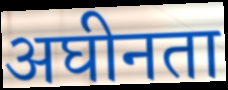
अघीनता